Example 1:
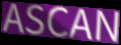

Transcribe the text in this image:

ASCAN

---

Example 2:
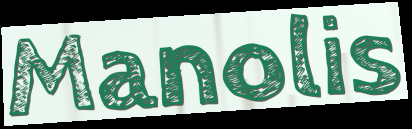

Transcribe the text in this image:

Manolis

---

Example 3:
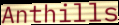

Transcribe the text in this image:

Anthills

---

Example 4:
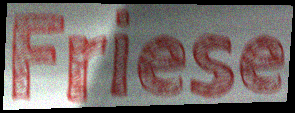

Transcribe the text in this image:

Friese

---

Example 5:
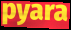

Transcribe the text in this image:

pyara